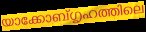
യാക്കോബ്ഗൃഹത്തിലെ